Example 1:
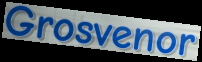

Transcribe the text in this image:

Grosvenor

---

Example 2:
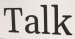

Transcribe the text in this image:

Talk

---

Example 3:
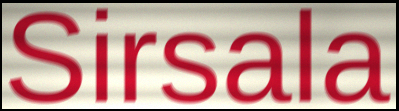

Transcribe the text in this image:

Sirsala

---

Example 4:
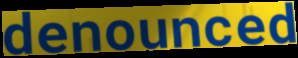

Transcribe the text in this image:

denounced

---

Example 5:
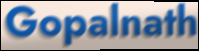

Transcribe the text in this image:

Gopalnath